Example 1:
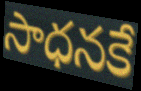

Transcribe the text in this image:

సాధనకే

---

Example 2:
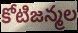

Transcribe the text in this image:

కోటిజన్మల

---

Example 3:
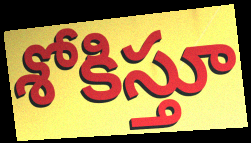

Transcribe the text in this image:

శోకిస్తూ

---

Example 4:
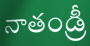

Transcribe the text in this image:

నాతండ్రీ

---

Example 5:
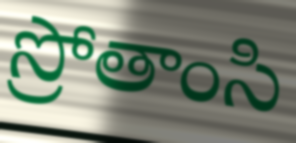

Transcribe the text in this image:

స్రోతాంసి